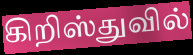
கிறிஸ்துவில்